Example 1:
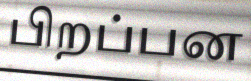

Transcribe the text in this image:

பிறப்பன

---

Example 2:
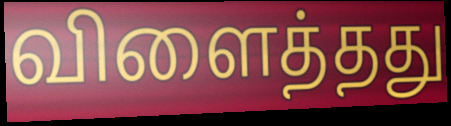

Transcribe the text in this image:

விளைத்தது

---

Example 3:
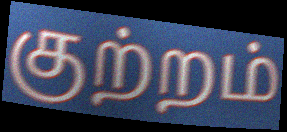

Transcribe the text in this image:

குற்றம்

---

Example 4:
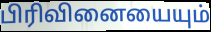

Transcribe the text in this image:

பிரிவினையையும்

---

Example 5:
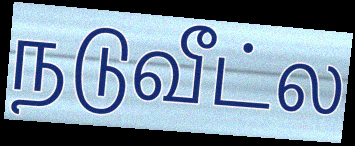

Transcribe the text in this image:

நடுவீட்ல